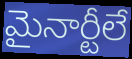
మైనార్టీలే